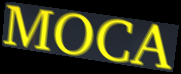
MOCA